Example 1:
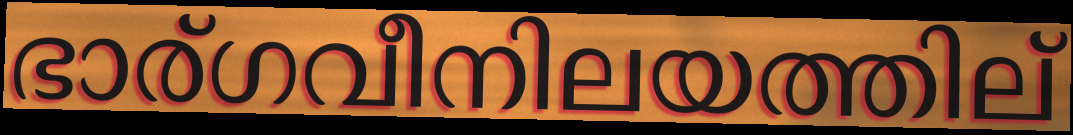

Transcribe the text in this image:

ഭാര്ഗവീനിലയത്തില്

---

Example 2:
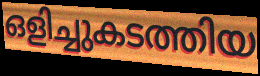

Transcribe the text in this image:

ഒളിച്ചുകടത്തിയ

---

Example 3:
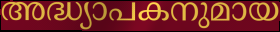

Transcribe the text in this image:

അദ്ധ്യാപകനുമായ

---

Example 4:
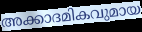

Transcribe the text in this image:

അക്കാദമികവുമായ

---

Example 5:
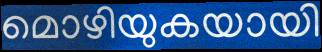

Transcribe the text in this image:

മൊഴിയുകയായി